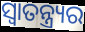
ସ୍ଵାତନ୍ତ୍ର୍ୟର